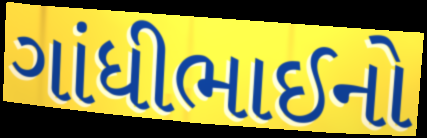
ગાંધીભાઈનો